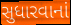
સુધારવાનાં